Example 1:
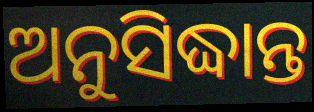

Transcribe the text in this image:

ଅନୁସିଦ୍ଧାନ୍ତ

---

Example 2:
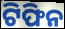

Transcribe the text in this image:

ଟିଫିନ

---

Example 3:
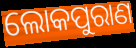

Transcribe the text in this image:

ଲୋକପୁରାଣ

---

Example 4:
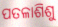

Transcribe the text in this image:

ପତଳାଶିଶୁ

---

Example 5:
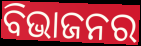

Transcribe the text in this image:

ବିଭାଜନର